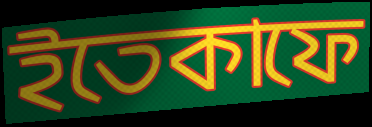
ইতেকাফে